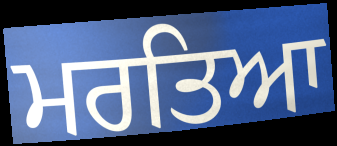
ਮਰਤਿਆ